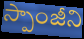
స్పాంజీని